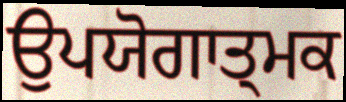
ਉਪਯੋਗਾਤ੍ਮਕ